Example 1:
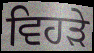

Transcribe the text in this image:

ਵਿਹੜੇ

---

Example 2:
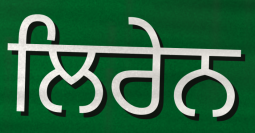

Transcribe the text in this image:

ਲਿਰੇਨ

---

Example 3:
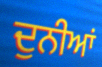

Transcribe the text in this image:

ਦੁਨੀਆਂ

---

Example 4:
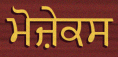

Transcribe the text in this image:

ਮੋਜ਼ੇਕਸ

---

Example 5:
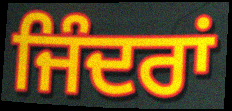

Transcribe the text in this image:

ਜਿੰਦਰਾਂ